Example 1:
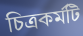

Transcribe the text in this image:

চিত্রকর্মটি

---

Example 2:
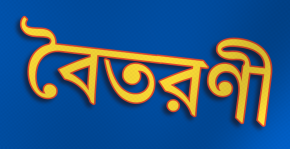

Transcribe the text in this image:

বৈতরণী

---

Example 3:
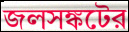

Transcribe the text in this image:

জলসঙ্কটের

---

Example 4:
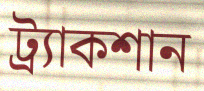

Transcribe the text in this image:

ট্র্যাকশান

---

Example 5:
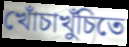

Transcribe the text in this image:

খোঁচাখুঁচিতে